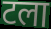
टला